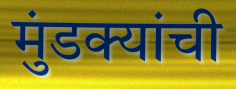
मुंडक्यांची